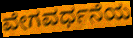
ವೇಗವರ್ಧನೆಯ